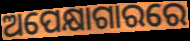
ଅପେକ୍ଷାଗାରରେ